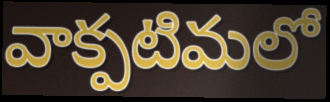
వాక్పటిమలో